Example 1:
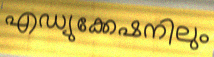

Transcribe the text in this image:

എഡ്യുക്കേഷനിലും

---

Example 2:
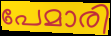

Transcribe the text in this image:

പേമാരി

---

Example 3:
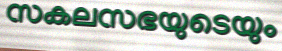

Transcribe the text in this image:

സകലസഭയുടെയും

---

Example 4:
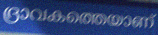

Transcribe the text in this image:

ദ്രാവകത്തെയാണ്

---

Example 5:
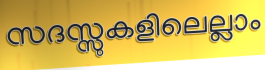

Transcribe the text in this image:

സദസ്സുകളിലെല്ലാം